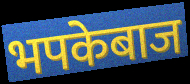
भपकेबाज